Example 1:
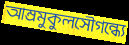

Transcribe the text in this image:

আম্রমুকুলসৌগন্ধ্যে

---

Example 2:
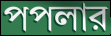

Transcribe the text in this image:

পপলার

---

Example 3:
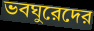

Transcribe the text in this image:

ভবঘুরেদের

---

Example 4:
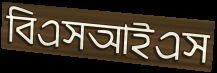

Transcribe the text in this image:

বিএসআইএস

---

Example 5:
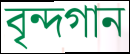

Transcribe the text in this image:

বৃন্দগান